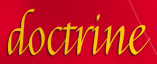
doctrine